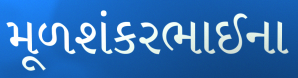
મૂળશંકરભાઈના